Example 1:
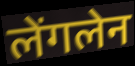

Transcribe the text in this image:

लेंगलेन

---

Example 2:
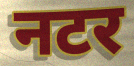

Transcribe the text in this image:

नटर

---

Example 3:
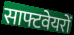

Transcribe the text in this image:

साफ्टवेयरों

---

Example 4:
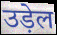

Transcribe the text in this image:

उड़ेल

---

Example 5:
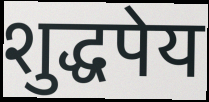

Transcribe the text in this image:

शुद्धपेय